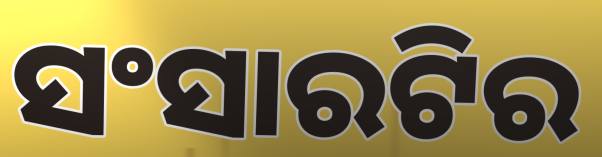
ସଂସାରଟିର